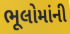
ભૂલોમાંની